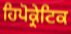
ਹਿਪੋਕ੍ਰੇਟਿਕ